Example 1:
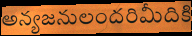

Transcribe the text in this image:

అన్యజనులందరిమీదికి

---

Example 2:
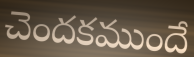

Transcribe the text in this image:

చెందకముందే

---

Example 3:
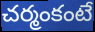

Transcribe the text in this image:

చర్మంకంటే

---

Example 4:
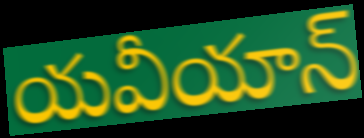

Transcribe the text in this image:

యవీయాన్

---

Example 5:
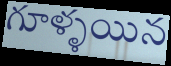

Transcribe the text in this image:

గూళ్ళయిన